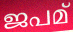
ജപമ്